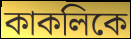
কাকলিকে